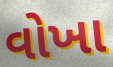
વોખા